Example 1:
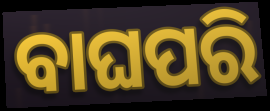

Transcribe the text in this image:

ବାଘପରି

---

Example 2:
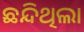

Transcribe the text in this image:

ଛନ୍ଦିଥିଲା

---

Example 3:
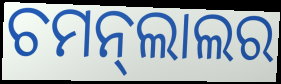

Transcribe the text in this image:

ଚମନ୍‍ଲାଲର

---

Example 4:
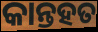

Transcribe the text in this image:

କାନ୍ତହତ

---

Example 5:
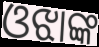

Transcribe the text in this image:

ଓଝାଙ୍କ